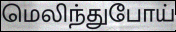
மெலிந்துபோய்